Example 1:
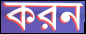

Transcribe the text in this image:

করন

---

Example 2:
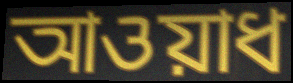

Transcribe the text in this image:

আওয়াধ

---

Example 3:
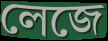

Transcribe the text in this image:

লেজে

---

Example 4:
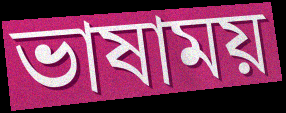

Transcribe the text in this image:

ভাষাময়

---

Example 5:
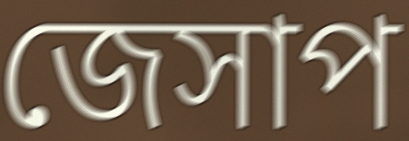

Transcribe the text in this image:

জেসাপ